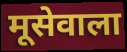
मूसेवाला